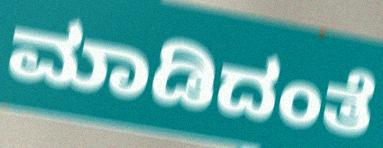
ಮಾಡಿದಂತೆ